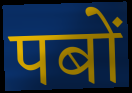
पबों